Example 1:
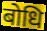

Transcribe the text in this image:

बोधि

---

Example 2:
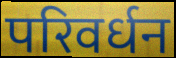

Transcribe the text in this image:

परिवर्धन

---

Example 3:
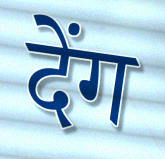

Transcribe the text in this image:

देंग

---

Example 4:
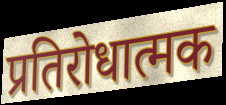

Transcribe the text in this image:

प्रतिरोधात्मक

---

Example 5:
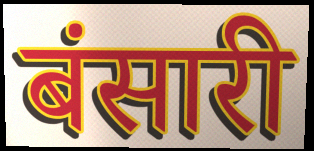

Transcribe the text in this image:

बंसारी